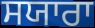
ਸਯਾਰਾ